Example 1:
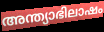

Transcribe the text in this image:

അന്ത്യാഭിലാഷം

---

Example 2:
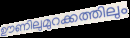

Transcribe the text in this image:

ഊണിലുമുറക്കത്തിലും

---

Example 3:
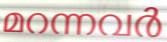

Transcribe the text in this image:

മറന്നവർ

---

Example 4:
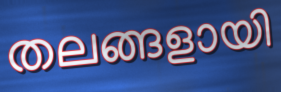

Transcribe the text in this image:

തലങ്ങളായി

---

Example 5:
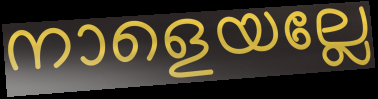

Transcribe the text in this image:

നാളെയല്ലേ